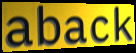
aback